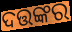
ଦତ୍ତଙ୍କର